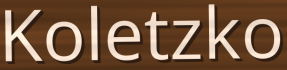
Koletzko